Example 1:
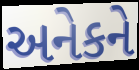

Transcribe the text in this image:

અનેકને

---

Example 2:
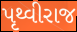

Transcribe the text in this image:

પૃથ્વીરાજ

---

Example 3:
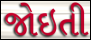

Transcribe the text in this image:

જોઇતી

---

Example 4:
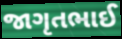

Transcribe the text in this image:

જાગૃતભાઈ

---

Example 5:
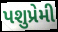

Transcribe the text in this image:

પશુપ્રેમી